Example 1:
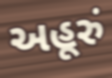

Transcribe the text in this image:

અહૂરું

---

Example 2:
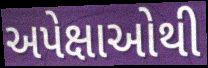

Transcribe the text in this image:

અપેક્ષાઓથી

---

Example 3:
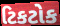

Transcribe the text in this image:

ટિકટોક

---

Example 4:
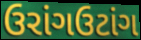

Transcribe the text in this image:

ઉરાંગઉટાંગ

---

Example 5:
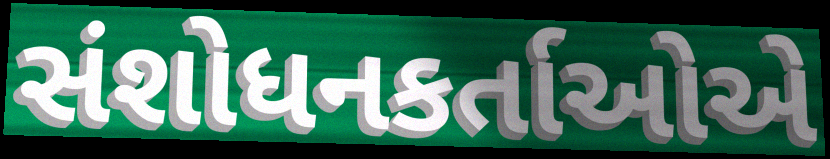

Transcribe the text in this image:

સંશોધનકર્તાઓએ